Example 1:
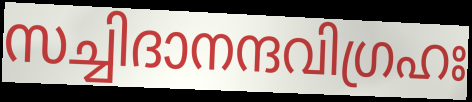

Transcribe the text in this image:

സച്ചിദാനന്ദവിഗ്രഹഃ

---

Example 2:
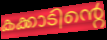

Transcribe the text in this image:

കക്കാടിന്റെ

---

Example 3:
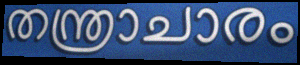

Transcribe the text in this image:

തന്ത്രാചാരം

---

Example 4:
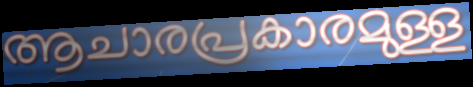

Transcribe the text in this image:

ആചാരപ്രകാരമുള്ള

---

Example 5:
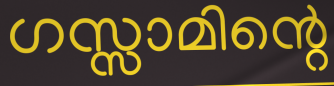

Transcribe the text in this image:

ഗസ്സാമിന്റെ